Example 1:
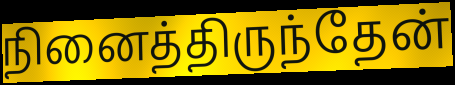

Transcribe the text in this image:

நினைத்திருந்தேன்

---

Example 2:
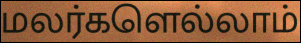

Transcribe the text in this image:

மலர்களெல்லாம்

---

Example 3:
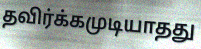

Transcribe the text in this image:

தவிர்க்கமுடியாதது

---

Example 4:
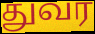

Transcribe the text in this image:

துவர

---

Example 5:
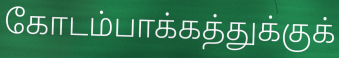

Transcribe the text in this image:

கோடம்பாக்கத்துக்குக்